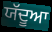
ਯੱਦੂਆ